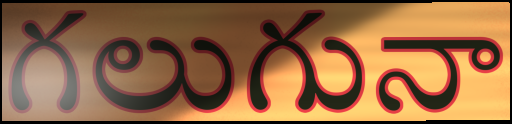
గలుగునా